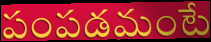
పంపడమంటే